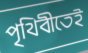
পৃথিবীতেই